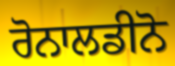
ਰੋਨਾਲਡੀਨੋ